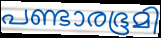
പണ്ടാരഭൂമി